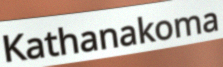
Kathanakoma